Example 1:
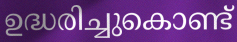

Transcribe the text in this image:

ഉദ്ധരിച്ചുകൊണ്ട്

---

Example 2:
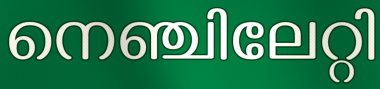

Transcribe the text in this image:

നെഞ്ചിലേറ്റി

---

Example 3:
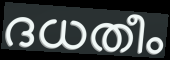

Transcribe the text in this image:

ദധതീം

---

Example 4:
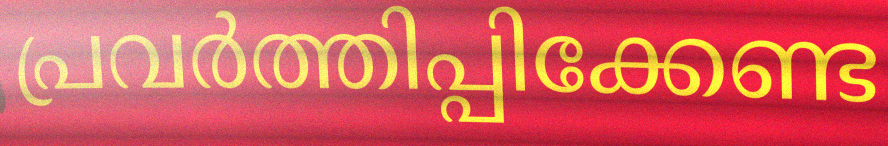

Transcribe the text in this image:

പ്രവർത്തിപ്പിക്കേണ്ട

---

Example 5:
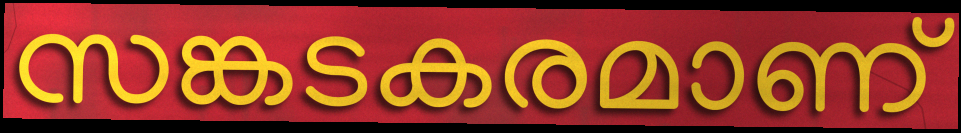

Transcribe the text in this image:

സങ്കടകരമാണ്